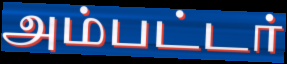
அம்பட்டர்